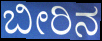
ಬೀರಿನ